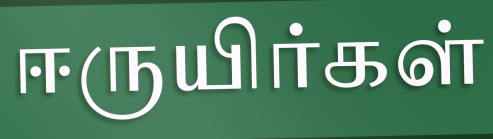
ஈருயிர்கள்